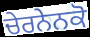
ਚੇਰਨੇਨਕੋ